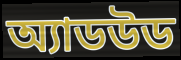
অ্যাডউড